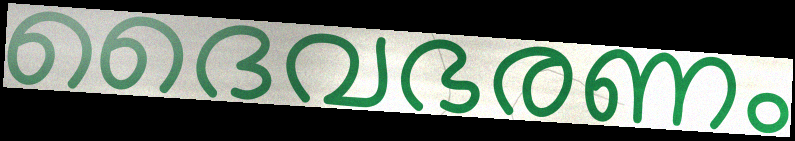
ദൈവഭരണം